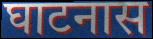
घाटनास